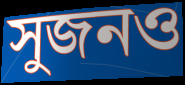
সুজনও